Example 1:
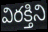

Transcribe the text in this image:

విరక్తిని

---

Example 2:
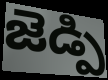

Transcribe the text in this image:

జెడ్పి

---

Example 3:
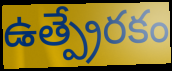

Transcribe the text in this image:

ఉత్ప్రేరకం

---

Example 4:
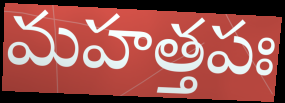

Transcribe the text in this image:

మహత్తపః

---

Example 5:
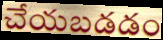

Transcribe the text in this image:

చేయబడడం